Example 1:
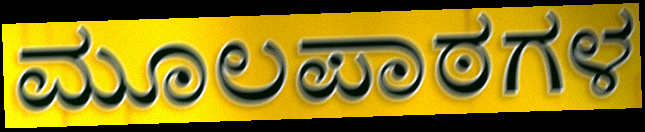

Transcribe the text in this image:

ಮೂಲಪಾಠಗಳ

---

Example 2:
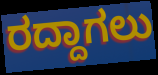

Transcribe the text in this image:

ರದ್ದಾಗಲು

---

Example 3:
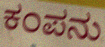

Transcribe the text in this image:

ಕಂಪನು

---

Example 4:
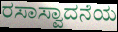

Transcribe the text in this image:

ರಸಾಸ್ವಾದನೆಯ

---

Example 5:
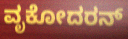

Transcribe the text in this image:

ವೃಕೋದರನ್